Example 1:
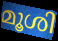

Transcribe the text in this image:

മൂശി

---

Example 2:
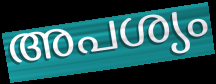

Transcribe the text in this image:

അപശ്യം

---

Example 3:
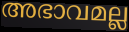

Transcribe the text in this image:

അഭാവമല്ല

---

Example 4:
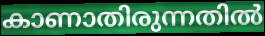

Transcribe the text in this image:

കാണാതിരുന്നതിൽ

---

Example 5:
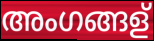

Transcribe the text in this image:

അംഗങ്ങള്